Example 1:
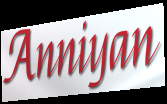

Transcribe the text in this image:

Anniyan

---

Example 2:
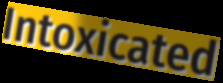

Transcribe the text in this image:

Intoxicated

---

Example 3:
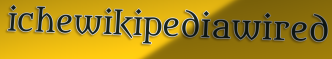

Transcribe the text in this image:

ichewikipediawired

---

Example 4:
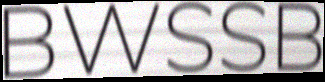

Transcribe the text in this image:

BWSSB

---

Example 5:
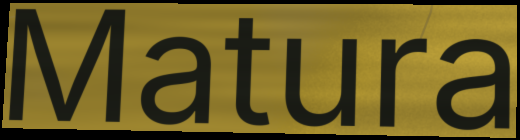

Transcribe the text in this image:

Matura